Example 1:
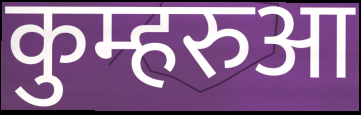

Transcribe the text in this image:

कुम्हरुआ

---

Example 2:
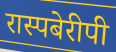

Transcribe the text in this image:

रास्पबेरीपी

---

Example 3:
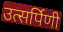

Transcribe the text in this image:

उत्सर्पिणी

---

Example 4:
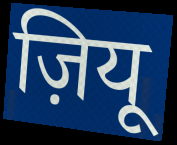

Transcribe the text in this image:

ज़ियू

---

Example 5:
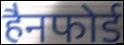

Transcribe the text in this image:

हैनफोर्ड